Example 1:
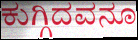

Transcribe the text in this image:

ಕುಗ್ಗಿದವನೂ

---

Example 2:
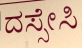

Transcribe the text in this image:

ದಸ್ಸೇಸಿ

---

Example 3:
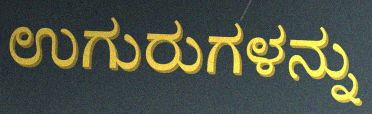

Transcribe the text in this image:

ಉಗುರುಗಳನ್ನು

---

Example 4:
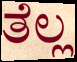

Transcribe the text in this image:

ತೆಲ್ಲ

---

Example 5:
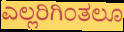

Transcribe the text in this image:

ಎಲ್ಲರಿಗಿಂತಲೂ